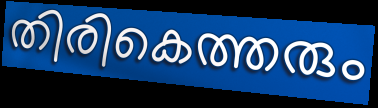
തിരികെത്തരും